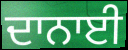
ਦਾਨਾਈ